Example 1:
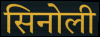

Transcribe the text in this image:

सिनोली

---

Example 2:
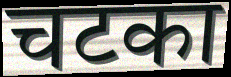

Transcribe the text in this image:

चटका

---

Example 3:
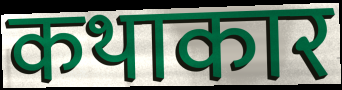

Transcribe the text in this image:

कथाकार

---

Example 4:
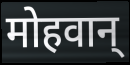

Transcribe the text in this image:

मोहवान्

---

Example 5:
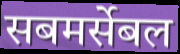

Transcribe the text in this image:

सबमर्सेबल